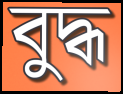
বুদ্ধ